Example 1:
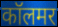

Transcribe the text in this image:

कॉलमर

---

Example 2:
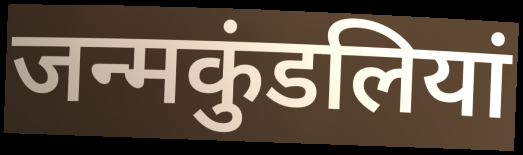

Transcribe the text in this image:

जन्मकुंडलियां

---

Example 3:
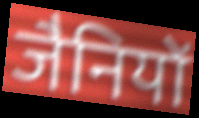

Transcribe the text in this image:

जैनियों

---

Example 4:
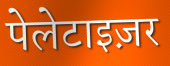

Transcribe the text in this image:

पेलेटाइज़र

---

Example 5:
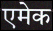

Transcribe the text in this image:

एमेक